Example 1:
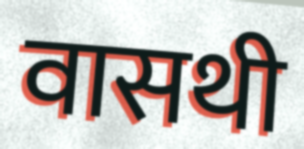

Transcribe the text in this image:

वासथी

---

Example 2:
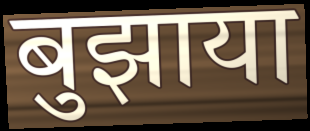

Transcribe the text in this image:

बुझाया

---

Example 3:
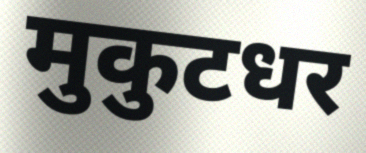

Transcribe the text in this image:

मुकुटधर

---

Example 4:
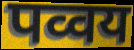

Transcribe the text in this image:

पव्वय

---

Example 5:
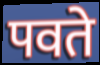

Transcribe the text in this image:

पवते